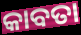
କାବତା